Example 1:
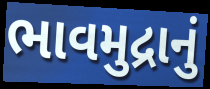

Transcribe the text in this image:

ભાવમુદ્રાનું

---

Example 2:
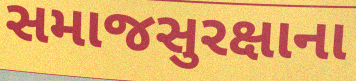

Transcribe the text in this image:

સમાજસુરક્ષાના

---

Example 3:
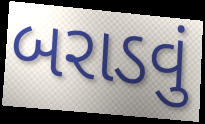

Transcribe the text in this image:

બરાડવું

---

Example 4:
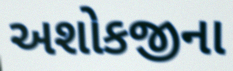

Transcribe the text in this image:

અશોકજીના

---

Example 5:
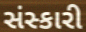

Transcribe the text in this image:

સંસ્કારી